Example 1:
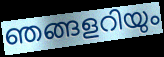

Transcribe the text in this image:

ഞങ്ങളറിയും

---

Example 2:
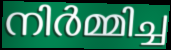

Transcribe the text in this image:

നിർമ്മിച്ച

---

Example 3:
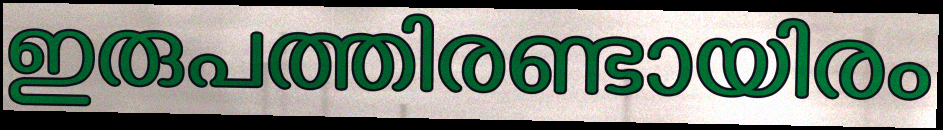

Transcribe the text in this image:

ഇരുപത്തിരണ്ടായിരം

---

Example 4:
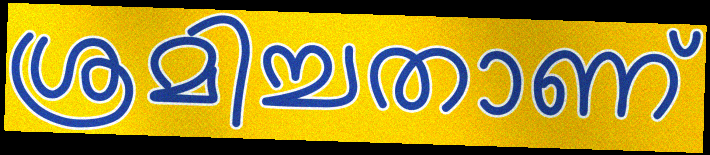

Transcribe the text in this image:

ശ്രമിച്ചതാണ്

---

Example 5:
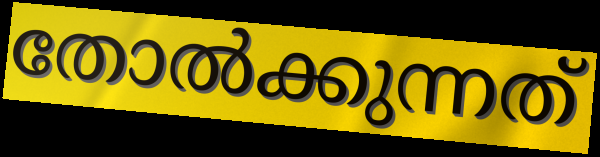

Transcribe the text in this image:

തോൽക്കുന്നത്